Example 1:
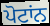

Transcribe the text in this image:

ਪੋਟਾਂਨ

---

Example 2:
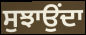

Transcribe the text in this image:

ਸੁਝਾਉਂਦਾ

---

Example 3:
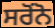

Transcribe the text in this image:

ਸਰੋਂਨੋ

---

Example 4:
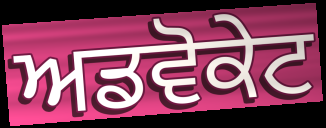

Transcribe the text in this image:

ਅਡਵੋਕੇਟ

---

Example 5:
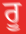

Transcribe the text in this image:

ਰੂ